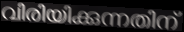
വിരിയിക്കുന്നതിന്